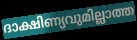
ദാക്ഷിണ്യവുമില്ലാത്ത